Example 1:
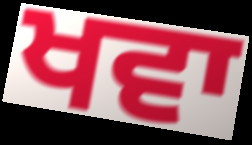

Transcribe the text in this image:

ਖਵਾ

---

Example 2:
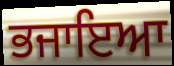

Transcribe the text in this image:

ਭਜਾਇਆ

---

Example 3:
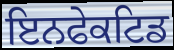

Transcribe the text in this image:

ਇਨਫੇਕਟਿਡ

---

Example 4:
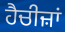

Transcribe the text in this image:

ਹੈਚੀਜ਼ਾਂ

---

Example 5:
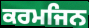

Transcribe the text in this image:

ਕਰਮਜਿਨ